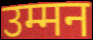
उम्मन